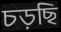
চড়ছি